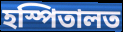
হস্পিতালত